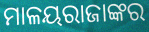
ମାଳୟରାଜାଙ୍କର